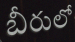
బీరులో